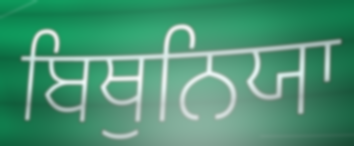
ਬਿਥੁਨਿਯਾ